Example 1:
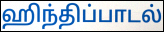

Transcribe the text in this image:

ஹிந்திப்பாடல்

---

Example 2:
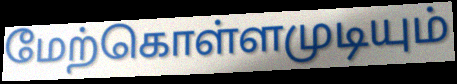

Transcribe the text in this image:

மேற்கொள்ளமுடியும்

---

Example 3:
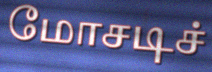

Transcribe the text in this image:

மோசடிச்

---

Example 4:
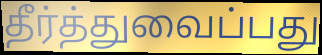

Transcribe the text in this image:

தீர்த்துவைப்பது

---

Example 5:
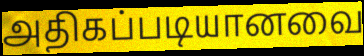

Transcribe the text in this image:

அதிகப்படியானவை